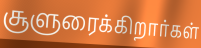
சூளுரைக்கிறார்கள்